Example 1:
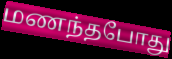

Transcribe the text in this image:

மணந்தபோது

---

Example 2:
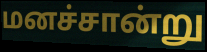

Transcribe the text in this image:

மனச்சான்று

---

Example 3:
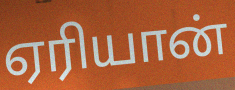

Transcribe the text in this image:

ஏரியான்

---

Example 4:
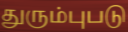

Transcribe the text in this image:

துரும்புபடு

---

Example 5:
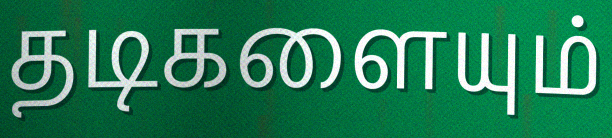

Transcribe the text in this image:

தடிகளையும்